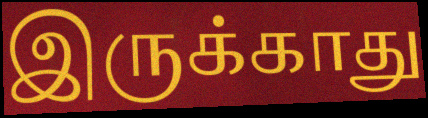
இருக்காது